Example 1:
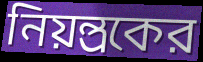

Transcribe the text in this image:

নিয়ন্ত্রকের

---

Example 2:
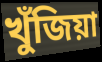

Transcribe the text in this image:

খুঁজিয়া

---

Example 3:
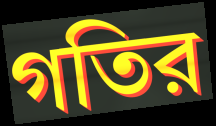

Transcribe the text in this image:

গতির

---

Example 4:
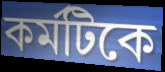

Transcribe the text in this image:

কর্মটিকে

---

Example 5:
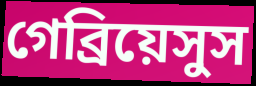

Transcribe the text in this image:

গেব্রিয়েসুস